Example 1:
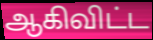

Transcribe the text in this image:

ஆகிவிட்ட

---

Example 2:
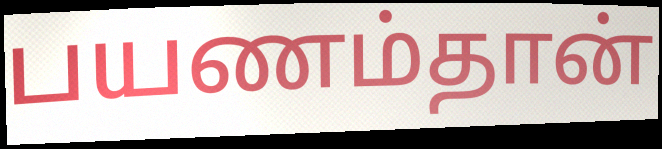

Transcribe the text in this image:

பயணம்தான்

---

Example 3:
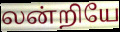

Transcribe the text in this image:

லன்றியே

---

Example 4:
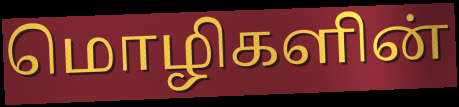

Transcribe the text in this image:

மொழிகளின்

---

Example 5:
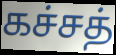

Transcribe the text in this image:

கச்சத்